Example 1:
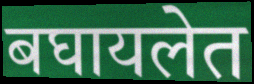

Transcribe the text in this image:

बघायलेत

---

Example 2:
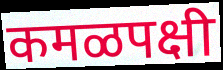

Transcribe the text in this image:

कमळपक्षी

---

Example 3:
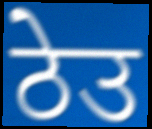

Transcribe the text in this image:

ठेउ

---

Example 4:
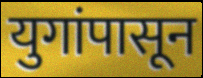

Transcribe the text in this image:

युगांपासून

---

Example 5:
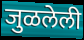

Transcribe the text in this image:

जुळलेली